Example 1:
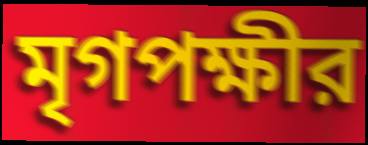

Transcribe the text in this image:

মৃগপক্ষীর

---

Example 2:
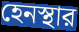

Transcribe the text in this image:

হেনস্থার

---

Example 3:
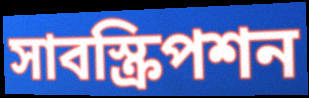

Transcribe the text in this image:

সাবস্ক্রিপশন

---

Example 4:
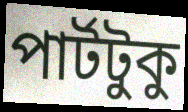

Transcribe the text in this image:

পার্টটুকু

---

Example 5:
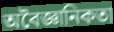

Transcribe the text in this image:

অবৈজ্ঞানিকতা